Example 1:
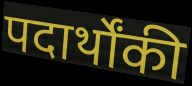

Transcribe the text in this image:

पदार्थोंकी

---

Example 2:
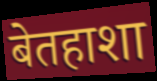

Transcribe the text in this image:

बेतहाशा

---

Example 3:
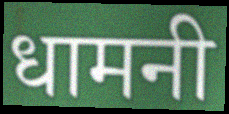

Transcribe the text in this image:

धामनी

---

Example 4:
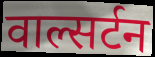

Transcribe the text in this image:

वाल्सर्टन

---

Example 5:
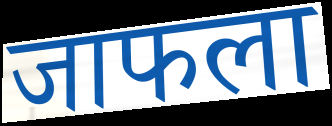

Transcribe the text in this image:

जाफला